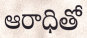
ఆరాధితో